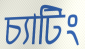
চ্যাটিং